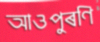
আওপুৰণি